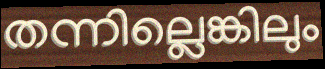
തന്നില്ലെങ്കിലും